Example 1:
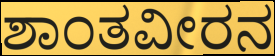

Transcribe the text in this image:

ಶಾಂತವೀರನ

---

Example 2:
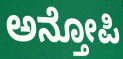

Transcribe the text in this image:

ಅನ್ತೋಪಿ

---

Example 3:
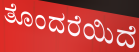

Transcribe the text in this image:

ತೊಂದರೆಯಿದೆ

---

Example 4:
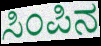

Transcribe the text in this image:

ಸಿಂಪಿನ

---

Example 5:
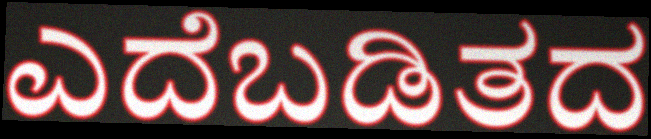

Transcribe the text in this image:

ಎದೆಬಡಿತದ